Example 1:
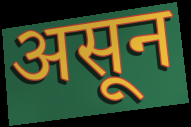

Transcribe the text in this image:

असून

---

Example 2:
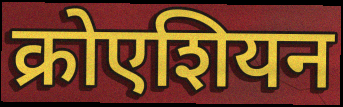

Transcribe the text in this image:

क्रोएशियन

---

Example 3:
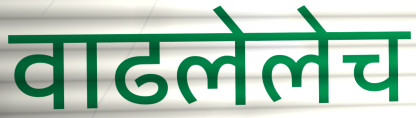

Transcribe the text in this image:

वाढलेलेच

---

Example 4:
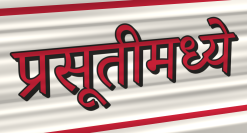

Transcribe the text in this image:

प्रसूतीमध्ये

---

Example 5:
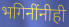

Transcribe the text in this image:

भगिनींनीही